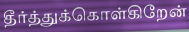
தீர்த்துக்கொள்கிறேன்